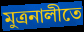
মুত্রনালীতে